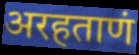
अरहताणं